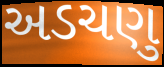
અડચણુ